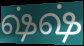
ஷ்ஷ்